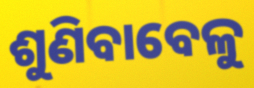
ଶୁଣିବାବେଳୁ